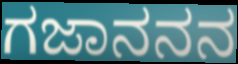
ಗಜಾನನನ